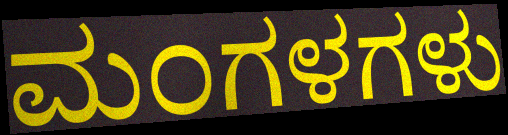
ಮಂಗಳಗಳು